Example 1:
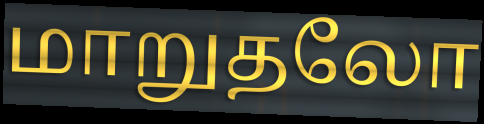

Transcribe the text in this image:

மாறுதலோ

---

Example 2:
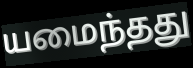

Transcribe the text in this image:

யமைந்தது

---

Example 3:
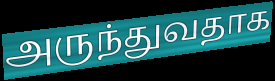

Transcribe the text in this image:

அருந்துவதாக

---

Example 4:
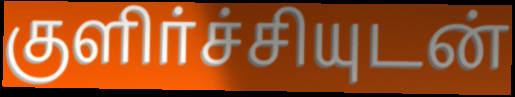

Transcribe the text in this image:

குளிர்ச்சியுடன்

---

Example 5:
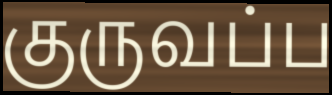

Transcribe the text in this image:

குருவப்ப